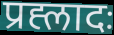
प्रह्लादः